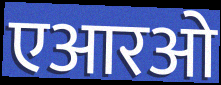
एआरओ